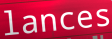
lances